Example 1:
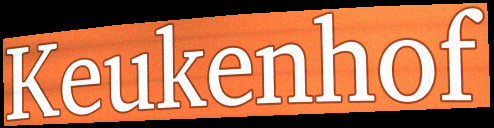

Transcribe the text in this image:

Keukenhof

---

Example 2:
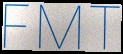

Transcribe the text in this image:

FMT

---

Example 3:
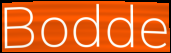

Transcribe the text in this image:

Bodde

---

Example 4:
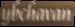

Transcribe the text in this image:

ybchavan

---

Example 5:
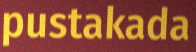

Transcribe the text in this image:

pustakada